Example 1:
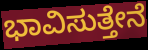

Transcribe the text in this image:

ಭಾವಿಸುತ್ತೇನೆ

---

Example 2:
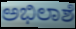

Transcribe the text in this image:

ಅಭಿಲಾಶೆ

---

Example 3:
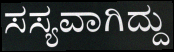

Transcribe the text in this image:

ಸಸ್ಯವಾಗಿದ್ದು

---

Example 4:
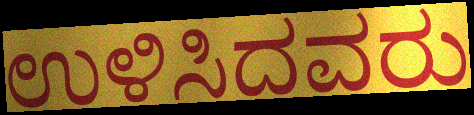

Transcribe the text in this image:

ಉಳಿಸಿದವರು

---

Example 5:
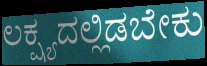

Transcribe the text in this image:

ಲಕ್ಷ್ಯದಲ್ಲಿಡಬೇಕು